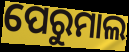
ପେରୁମାଲ